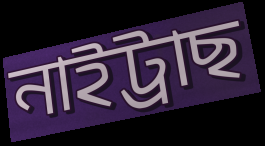
নাইট্ৰাছ